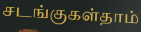
சடங்குகள்தாம்